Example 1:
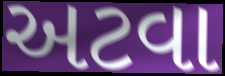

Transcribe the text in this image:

અટવા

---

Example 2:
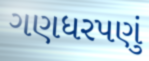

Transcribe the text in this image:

ગણધરપણું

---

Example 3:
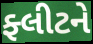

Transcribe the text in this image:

ફ્લીટને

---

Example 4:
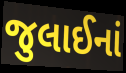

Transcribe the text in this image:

જુલાઈનાં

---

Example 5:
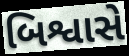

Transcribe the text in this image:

બિશ્વાસે